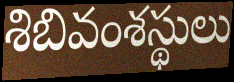
శిబివంశస్థులు